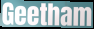
Geetham